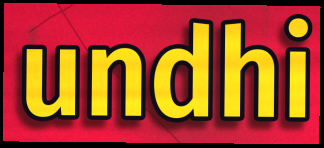
undhi